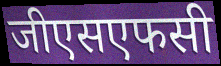
जीएसएफसी